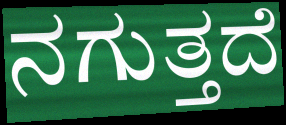
ನಗುತ್ತದೆ